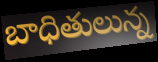
బాధితులున్న